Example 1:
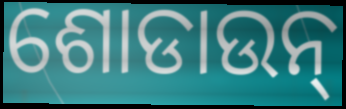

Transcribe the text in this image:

ଶୋଡାଉନ୍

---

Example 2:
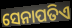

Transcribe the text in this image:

ସେନାପତିଏ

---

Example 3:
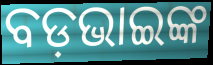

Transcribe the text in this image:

ବଡ଼ଭାଇଙ୍କ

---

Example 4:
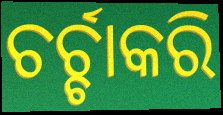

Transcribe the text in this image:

ଚର୍ଚ୍ଚାକରି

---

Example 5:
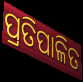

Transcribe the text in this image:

ପ୍ରତିପାଳିତ